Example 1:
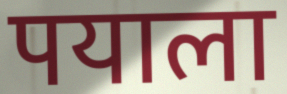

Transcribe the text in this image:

पयाला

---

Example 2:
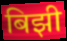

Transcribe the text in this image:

बिझी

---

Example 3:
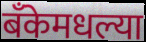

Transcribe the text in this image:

बँकेमधल्या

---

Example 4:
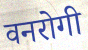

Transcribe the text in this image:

वनरोगी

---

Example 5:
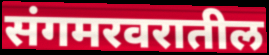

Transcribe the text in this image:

संगमरवरातील